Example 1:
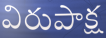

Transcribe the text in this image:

విరుపాక్ష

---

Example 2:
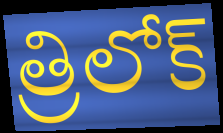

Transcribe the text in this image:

త్రిలోక్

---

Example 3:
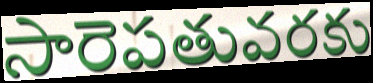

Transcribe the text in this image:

సారెపతువరకు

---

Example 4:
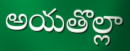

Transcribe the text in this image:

అయతొల్లా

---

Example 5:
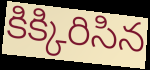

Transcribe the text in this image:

కిక్కిరిసిన